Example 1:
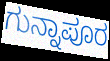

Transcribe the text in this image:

ಗುನ್ನಾಪೂರ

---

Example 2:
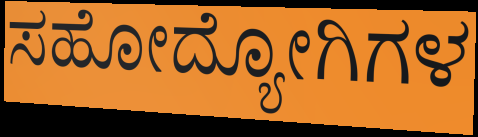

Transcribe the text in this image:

ಸಹೋದ್ಯೋಗಿಗಳ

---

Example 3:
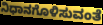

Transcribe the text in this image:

ನಿಧಾನಗೊಳಿಸುವಂತೆ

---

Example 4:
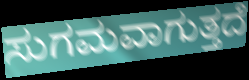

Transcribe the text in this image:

ಸುಗಮವಾಗುತ್ತದೆ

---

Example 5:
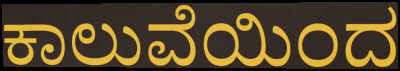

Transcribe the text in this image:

ಕಾಲುವೆಯಿಂದ